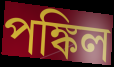
পঙ্কিল